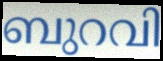
ബുറവി